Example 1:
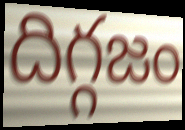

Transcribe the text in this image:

దిగ్గజం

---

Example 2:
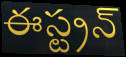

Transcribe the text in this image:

ఈస్ట్రన్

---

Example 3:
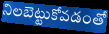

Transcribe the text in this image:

నిలబెట్టుకోవడంతో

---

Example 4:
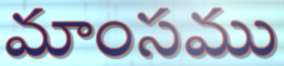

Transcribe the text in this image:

మాంసము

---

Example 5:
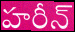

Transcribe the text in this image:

హరీన్